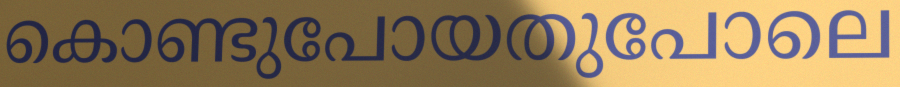
കൊണ്ടുപോയതുപോലെ